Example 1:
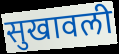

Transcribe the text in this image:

सुखावली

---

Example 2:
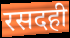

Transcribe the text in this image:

रसदही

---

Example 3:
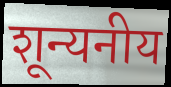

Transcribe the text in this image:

शून्यनीय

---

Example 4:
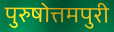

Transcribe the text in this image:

पुरुषोत्तमपुरी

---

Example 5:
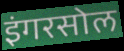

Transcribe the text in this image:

इंगरसोल